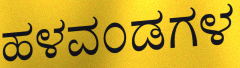
ಹಳವಂಡಗಳ